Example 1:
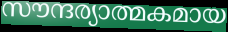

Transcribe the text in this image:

സൗന്ദര്യാത്മകമായ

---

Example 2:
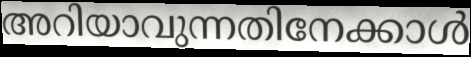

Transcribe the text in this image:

അറിയാവുന്നതിനേക്കാൾ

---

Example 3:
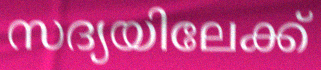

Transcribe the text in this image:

സദ്യയിലേക്ക്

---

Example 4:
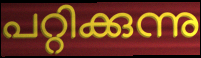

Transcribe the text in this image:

പറ്റിക്കുന്നു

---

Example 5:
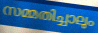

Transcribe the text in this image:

സമ്മതിച്ചാലും